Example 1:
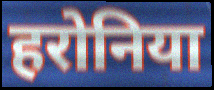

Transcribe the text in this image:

हरोनिया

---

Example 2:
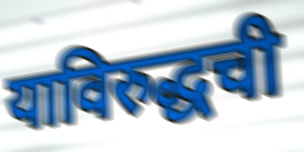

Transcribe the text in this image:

याविरुद्धची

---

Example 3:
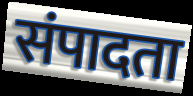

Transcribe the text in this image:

संपादता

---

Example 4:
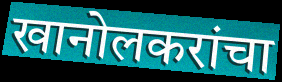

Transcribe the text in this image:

खानोलकरांचा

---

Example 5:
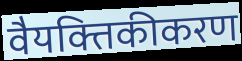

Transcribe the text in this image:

वैयक्तिकीकरण